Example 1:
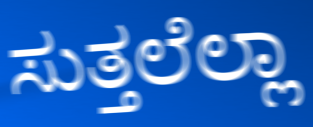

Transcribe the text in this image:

ಸುತ್ತಲೆಲ್ಲಾ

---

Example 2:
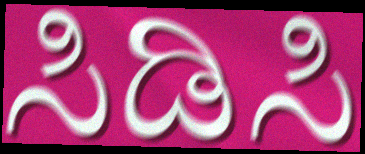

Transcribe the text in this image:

ಸಿಡಿಸಿ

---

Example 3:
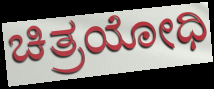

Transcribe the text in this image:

ಚಿತ್ರಯೋಧಿ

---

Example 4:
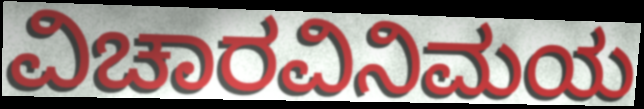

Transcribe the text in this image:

ವಿಚಾರವಿನಿಮಯ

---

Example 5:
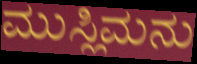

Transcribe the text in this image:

ಮುಸ್ಲಿಮನು